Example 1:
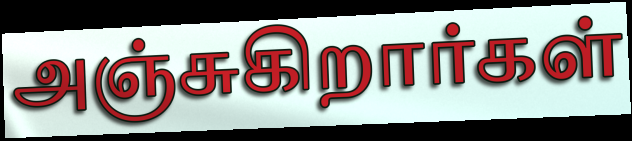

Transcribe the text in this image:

அஞ்சுகிறார்கள்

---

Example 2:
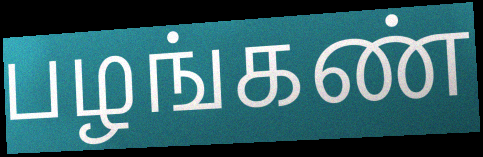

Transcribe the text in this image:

பழங்கண்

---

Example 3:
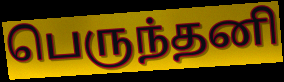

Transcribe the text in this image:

பெருந்தனி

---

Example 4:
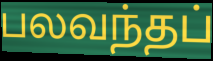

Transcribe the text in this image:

பலவந்தப்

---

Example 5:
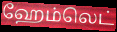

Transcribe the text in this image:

ஹேம்லெட்